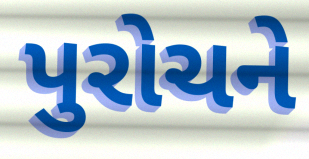
પુરોચને